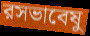
রসভাবেষু